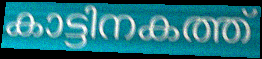
കാട്ടിനകത്ത്